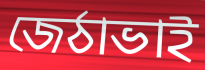
জেঠাভাই